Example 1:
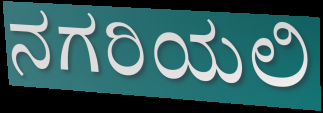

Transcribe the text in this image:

ನಗರಿಯಲಿ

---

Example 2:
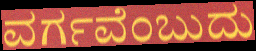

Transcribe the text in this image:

ವರ್ಗವೆಂಬುದು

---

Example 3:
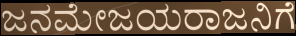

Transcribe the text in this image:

ಜನಮೇಜಯರಾಜನಿಗೆ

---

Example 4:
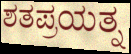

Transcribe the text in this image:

ಶತಪ್ರಯತ್ನ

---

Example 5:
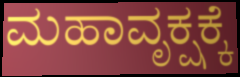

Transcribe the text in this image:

ಮಹಾವೃಕ್ಷಕ್ಕೆ